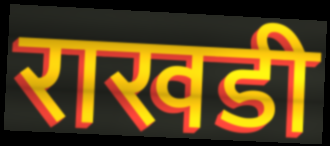
राखडी